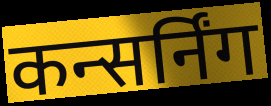
कन्सर्निंग